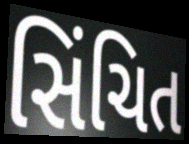
સિંચિત